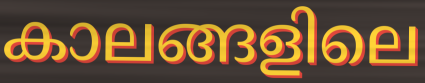
കാലങ്ങളിലെ